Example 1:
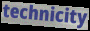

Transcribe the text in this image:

technicity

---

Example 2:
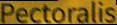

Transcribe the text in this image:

Pectoralis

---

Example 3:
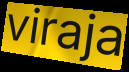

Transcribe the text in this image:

viraja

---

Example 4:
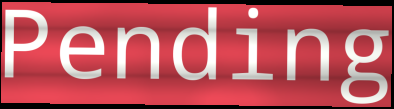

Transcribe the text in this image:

Pending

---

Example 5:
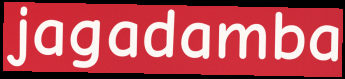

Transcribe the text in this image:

jagadamba